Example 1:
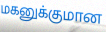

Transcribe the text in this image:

மகனுக்குமான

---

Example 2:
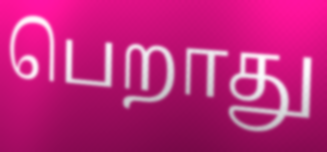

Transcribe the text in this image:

பெறாது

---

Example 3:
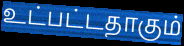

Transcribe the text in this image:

உட்பட்டதாகும்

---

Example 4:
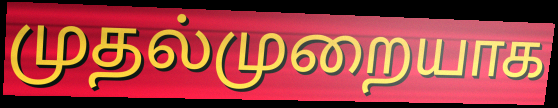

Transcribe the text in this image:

முதல்முறையாக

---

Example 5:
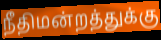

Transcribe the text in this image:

நீதிமன்றத்துக்கு